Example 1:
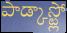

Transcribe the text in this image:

పాడ్కాస్ట్లో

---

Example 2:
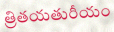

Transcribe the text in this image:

త్రితయతురీయం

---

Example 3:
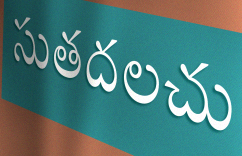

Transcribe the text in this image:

సుతదలచు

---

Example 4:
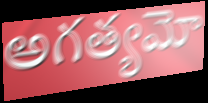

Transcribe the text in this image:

అగత్యమో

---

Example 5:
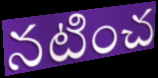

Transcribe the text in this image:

నటించ